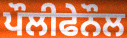
ਪੌਲੀਫੇਨੌਲ